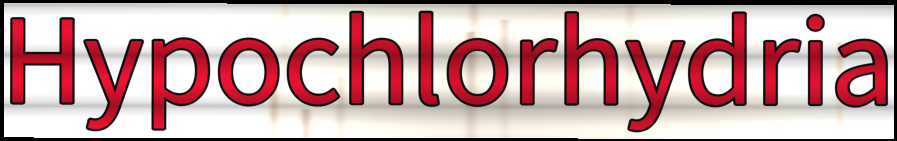
Hypochlorhydria